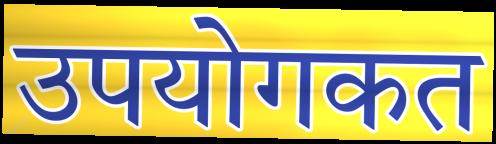
उपयोगकत